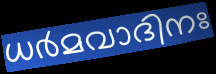
ധർമവാദിനഃ